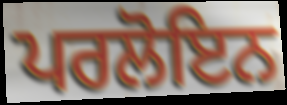
ਪਰਲੋਇਨ